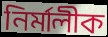
নিৰ্মালীক